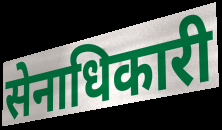
सेनाधिकारी